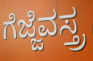
ಗೆಜ್ಜೆವಸ್ತ್ರ